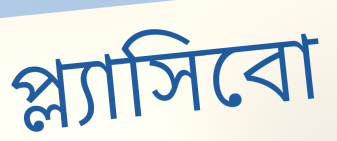
প্ল্যাসিবো